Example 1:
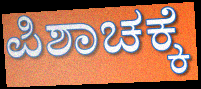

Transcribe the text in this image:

ಪಿಶಾಚಕ್ಕೆ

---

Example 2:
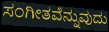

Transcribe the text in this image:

ಸಂಗೀತವೆನ್ನುವುದು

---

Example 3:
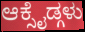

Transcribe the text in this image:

ಆಕ್ಸೈಡ್ಗಳು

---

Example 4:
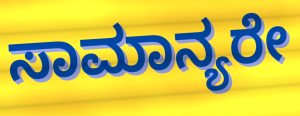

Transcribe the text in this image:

ಸಾಮಾನ್ಯರೇ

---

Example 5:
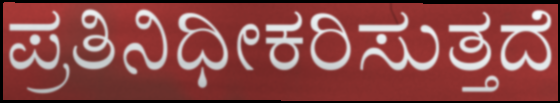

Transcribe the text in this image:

ಪ್ರತಿನಿಧೀಕರಿಸುತ್ತದೆ